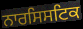
ਨਾਰਸਿਸਟਿਕ